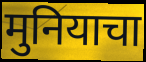
मुनियाचा